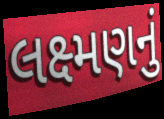
લક્ષ્મણનું